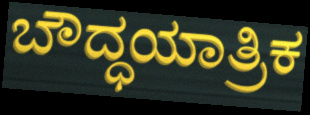
ಬೌದ್ಧಯಾತ್ರಿಕ